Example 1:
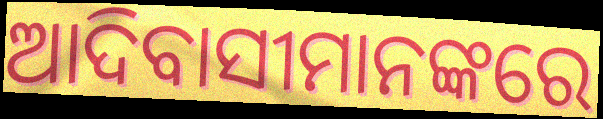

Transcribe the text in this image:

ଆଦିବାସୀମାନଙ୍କରେ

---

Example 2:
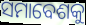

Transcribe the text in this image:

ସମାବେଶକୁ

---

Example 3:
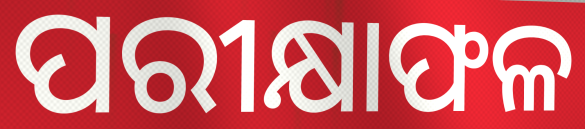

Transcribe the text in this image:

ପରୀକ୍ଷାଫଳ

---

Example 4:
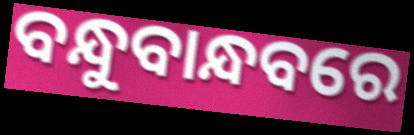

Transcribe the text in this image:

ବନ୍ଧୁବାନ୍ଧବରେ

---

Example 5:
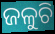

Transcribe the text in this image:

ଜଳୁଚି